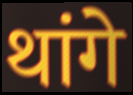
थांगे